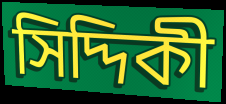
সিদ্দিকী